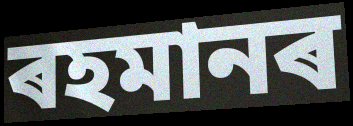
ৰহমানৰ